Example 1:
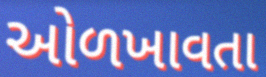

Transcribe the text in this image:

ઓળખાવતા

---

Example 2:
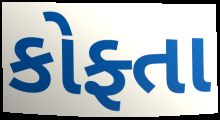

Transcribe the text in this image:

કોફ્તા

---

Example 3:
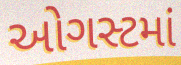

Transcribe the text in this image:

ઓગસ્ટમાં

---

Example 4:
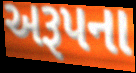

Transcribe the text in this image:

અરૂપના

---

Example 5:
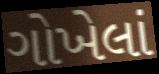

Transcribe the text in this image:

ગોખેલાં